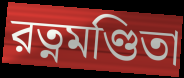
রত্নমণ্ডিতা